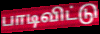
பாடிவிட்டு